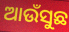
ଆଉଁସୁଛ